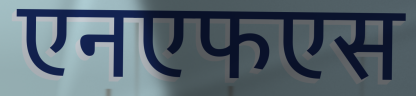
एनएफएस